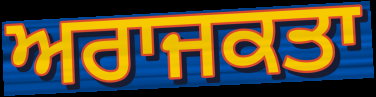
ਅਰਾਜਕਤਾ